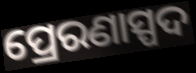
ପ୍ରେରଣାସ୍ପଦ